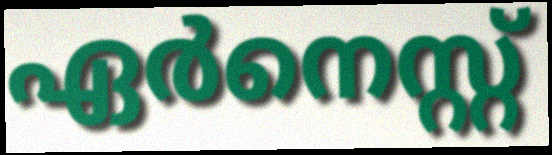
ഏർനെസ്റ്റ്